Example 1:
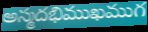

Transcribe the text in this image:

అస్మదభిముఖముగ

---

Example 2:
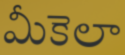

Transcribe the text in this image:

మీకెలా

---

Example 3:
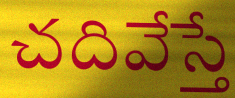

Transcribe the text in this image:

చదివేస్తే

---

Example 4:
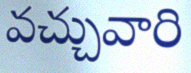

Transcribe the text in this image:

వచ్చువారి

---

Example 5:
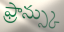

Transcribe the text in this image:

ఫ్రాన్స్కు